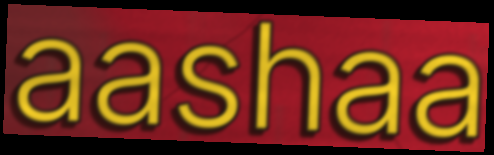
aashaa